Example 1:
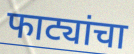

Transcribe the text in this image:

फाट्यांचा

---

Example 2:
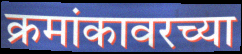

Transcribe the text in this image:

क्रमांकावरच्या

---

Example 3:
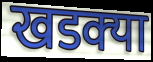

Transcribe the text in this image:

खडक्या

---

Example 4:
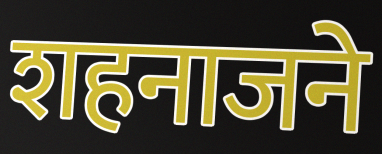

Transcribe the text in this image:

शहनाजने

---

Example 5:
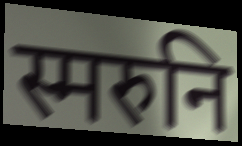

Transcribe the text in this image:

स्मरुनि